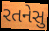
રતનેસુ